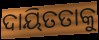
ଦାୟିତତାକୁ